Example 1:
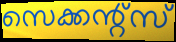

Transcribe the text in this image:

സെക്കന്റ്സ്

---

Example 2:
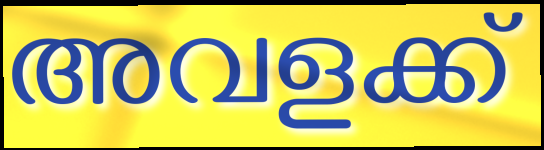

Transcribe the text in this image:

അവളക്ക്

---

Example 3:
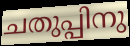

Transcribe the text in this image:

ചതുപ്പിനു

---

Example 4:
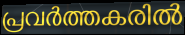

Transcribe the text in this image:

പ്രവർത്തകരിൽ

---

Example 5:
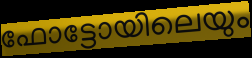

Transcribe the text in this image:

ഫോട്ടോയിലെയും